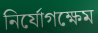
নির্যোগক্ষেম